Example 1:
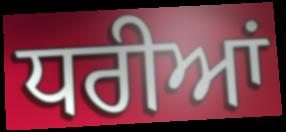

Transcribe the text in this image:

ਧਰੀਆਂ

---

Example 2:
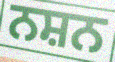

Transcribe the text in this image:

ਨਸ਼ਨ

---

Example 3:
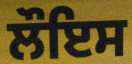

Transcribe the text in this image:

ਲੌਇਸ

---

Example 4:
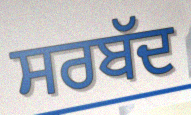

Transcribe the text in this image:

ਸਰਬੱਦ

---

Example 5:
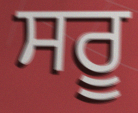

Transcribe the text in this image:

ਸਰੂ